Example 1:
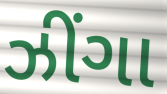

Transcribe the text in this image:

ઝીંગા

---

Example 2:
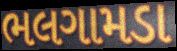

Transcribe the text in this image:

ભલગામડા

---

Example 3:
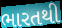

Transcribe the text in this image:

ભારતથી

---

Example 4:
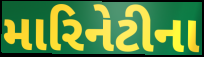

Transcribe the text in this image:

મારિનેટીના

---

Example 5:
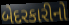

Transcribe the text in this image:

બેદરકારીનો